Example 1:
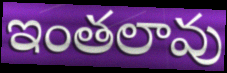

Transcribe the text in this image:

ఇంతలావు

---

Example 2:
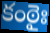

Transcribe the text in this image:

కంఠైః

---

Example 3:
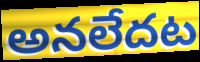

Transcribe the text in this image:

అనలేదట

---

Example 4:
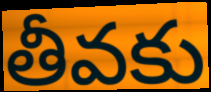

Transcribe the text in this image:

తీవకు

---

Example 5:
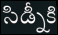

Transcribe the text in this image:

సిడ్నీకి